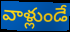
వాళ్లుండే